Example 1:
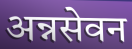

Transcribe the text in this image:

अन्नसेवन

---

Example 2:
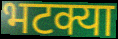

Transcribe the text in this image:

भटक्या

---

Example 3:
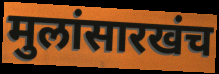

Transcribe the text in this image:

मुलांसारखंच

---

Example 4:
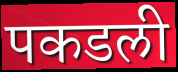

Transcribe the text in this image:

पकडली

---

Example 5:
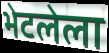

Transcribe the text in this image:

भेटलेला